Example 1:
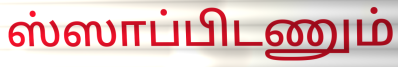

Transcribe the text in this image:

ஸ்ஸாப்பிடணும்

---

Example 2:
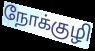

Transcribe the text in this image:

நோக்குழி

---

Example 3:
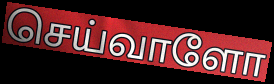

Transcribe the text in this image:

செய்வாளோ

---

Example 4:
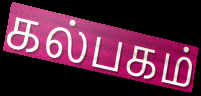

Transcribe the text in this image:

கல்பகம்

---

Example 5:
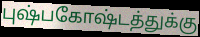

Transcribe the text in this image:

புஷ்பகோஷ்டத்துக்கு